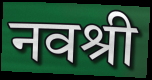
नवश्री